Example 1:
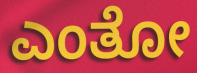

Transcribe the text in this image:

ಎಂತೋ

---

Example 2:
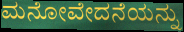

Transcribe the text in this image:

ಮನೋವೇದನೆಯನ್ನು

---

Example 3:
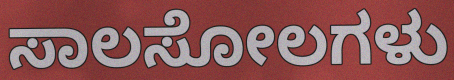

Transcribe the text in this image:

ಸಾಲಸೋಲಗಳು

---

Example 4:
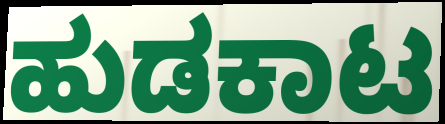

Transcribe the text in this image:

ಹುಡಕಾಟ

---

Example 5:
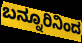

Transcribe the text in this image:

ಬನ್ನೂರಿನಿಂದ